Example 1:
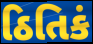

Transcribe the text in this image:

ઠિતિકં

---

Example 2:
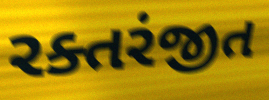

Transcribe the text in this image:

રક્તરંજીત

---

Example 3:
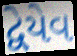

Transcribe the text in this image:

દ્વેયેવ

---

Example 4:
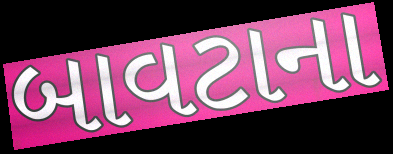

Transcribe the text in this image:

બાવટાના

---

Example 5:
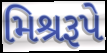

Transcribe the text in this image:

મિશ્રરૂપે